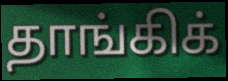
தாங்கிக்